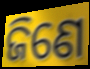
ଜିଣେ